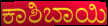
ಕಾಶಿಬಾಯಿ